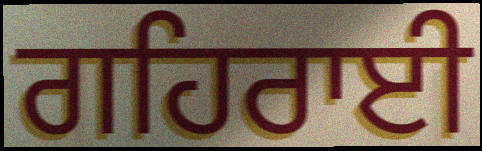
ਗਹਿਰਾਈ